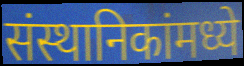
संस्थानिकांमध्ये